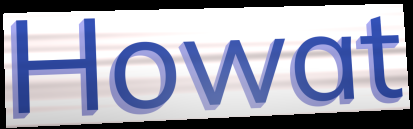
Howat